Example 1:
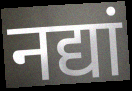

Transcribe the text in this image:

नद्यां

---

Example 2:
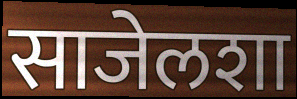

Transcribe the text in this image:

साजेलशा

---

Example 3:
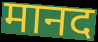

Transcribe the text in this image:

मानद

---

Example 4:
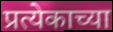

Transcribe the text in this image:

प्रत्येकाच्या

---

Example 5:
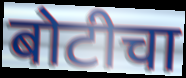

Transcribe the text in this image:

बोटीचा